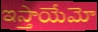
ఇస్తాయేమో